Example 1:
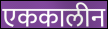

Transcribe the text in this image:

एककालीन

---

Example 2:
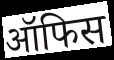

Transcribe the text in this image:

ऑफिस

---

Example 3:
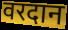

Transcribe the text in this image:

वरदान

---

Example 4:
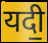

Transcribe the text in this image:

यदी॒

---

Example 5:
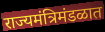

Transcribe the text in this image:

राज्यमंत्रिमंडळात